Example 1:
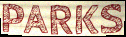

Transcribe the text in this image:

PARKS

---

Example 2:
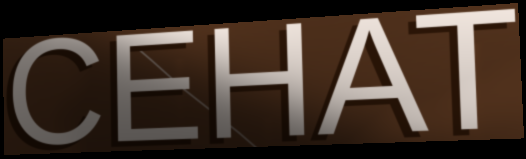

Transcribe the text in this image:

CEHAT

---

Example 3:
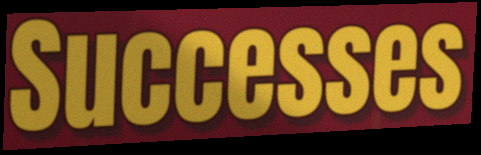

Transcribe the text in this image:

Successes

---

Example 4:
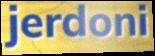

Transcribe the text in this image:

jerdoni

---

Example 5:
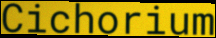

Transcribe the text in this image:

Cichorium